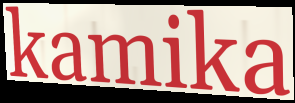
kamika